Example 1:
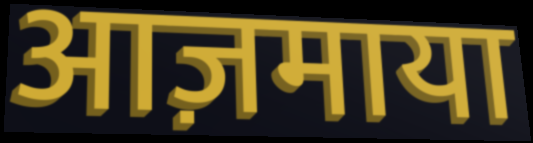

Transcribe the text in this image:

आज़माया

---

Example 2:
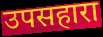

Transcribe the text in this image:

उपसहारा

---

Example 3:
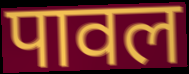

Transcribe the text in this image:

पावल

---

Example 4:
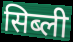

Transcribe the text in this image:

सिब्ली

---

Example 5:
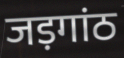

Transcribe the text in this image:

जड़गांठ